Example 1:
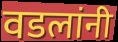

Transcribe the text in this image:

वडलांनी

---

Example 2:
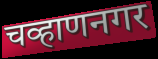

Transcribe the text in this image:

चव्हाणनगर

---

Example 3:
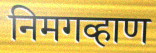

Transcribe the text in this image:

निमगव्हाण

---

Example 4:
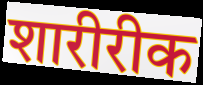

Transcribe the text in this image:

शारीरीक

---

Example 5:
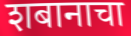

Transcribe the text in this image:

शबानाचा